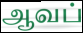
ஆவப்